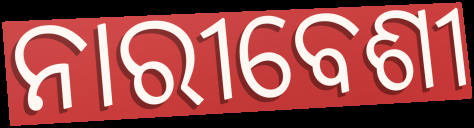
ନାରୀବେଶୀ